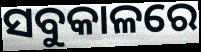
ସବୁକାଳରେ